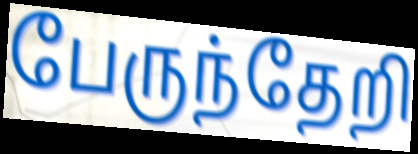
பேருந்தேறி